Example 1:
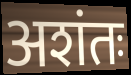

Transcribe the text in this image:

अशंतः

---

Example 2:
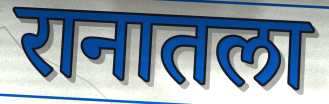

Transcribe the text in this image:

रानातला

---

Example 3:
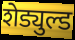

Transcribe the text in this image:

शेड्युल्ड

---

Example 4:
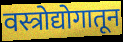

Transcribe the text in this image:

वस्त्रोद्योगातून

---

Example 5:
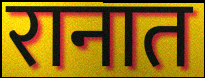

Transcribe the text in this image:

रानात